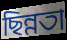
ছিন্নতা